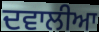
ਦਵਾਲੀਆ